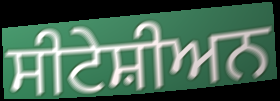
ਸੀਟੇਸ਼ੀਅਨ